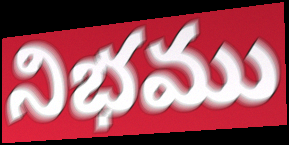
నిభము